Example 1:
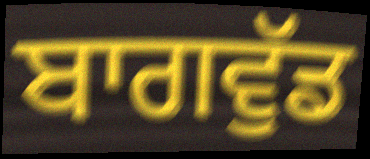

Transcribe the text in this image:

ਬਾਗਵੁੱਡ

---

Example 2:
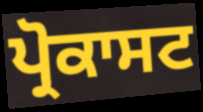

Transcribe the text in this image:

ਪ੍ਰੋਕਾਸਟ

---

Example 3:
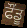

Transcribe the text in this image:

ਫੌਂਡੂ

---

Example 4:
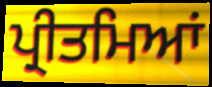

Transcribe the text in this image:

ਪ੍ਰੀਤਮਿਆਂ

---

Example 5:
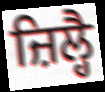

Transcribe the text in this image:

ਜ਼ਿਲ੍ਹੈ